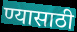
ण्यासाठी